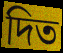
দিত